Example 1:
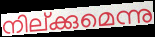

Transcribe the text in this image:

നില്ക്കുമെന്നു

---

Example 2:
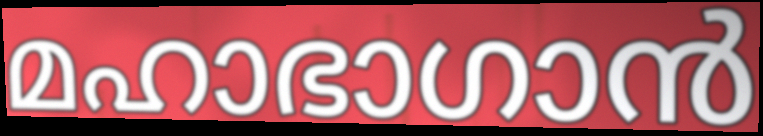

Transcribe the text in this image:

മഹാഭാഗാൻ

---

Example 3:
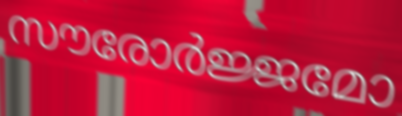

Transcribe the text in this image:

സൗരോർജ്ജമോ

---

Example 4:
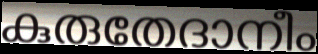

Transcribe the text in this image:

കുരുതേദാനീം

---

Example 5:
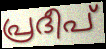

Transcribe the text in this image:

പ്രദീപ്